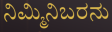
ನಿಮ್ಮಿನಿಬರನು